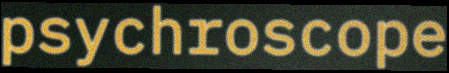
psychroscope